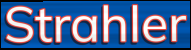
Strahler